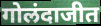
गोलंदाजीत